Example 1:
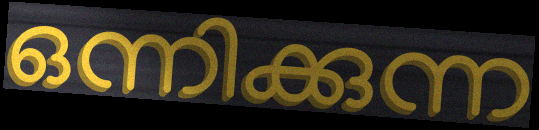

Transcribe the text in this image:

ഒന്നിക്കുന്ന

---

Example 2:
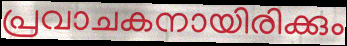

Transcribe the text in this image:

പ്രവാചകനായിരിക്കും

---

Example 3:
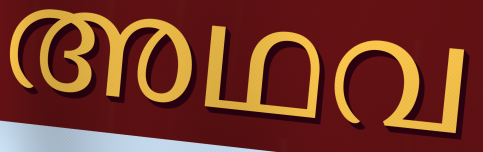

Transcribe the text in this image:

അഥവ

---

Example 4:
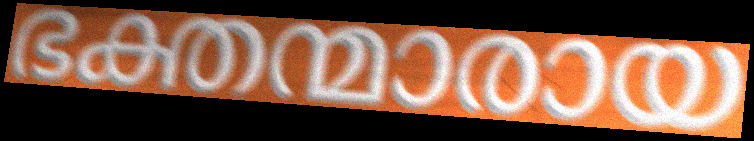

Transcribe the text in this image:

ഭക്തന്മാരായ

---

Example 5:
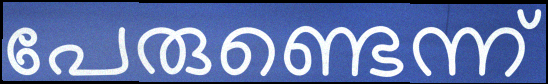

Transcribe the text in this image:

പേരുണ്ടെന്ന്